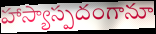
హాస్యాస్పదంగానూ